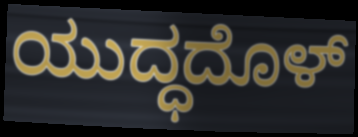
ಯುದ್ಧದೊಳ್